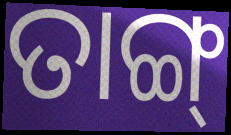
ତାଙ୍ଗ୍